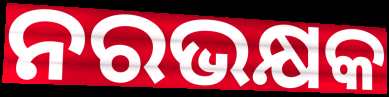
ନରଭକ୍ଷକ